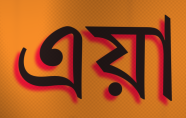
এয়া